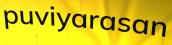
puviyarasan